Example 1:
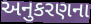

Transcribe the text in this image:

અનુકરણના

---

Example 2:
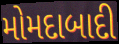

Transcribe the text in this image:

મોમદાબાદી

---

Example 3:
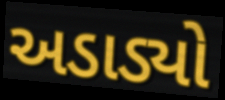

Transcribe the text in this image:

અડાડ્યો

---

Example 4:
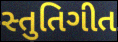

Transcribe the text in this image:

સ્તુતિગીત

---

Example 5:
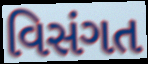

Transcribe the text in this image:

વિસંગત